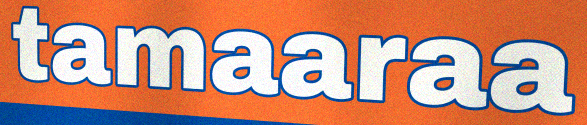
tamaaraa